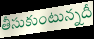
తీసుకుంటున్నదీ